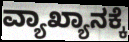
ವ್ಯಾಖ್ಯಾನಕ್ಕೆ